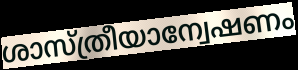
ശാസ്ത്രീയാന്വേഷണം